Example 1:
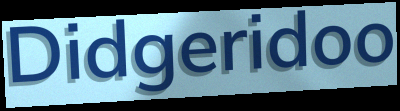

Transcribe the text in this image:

Didgeridoo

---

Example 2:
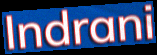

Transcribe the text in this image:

Indrani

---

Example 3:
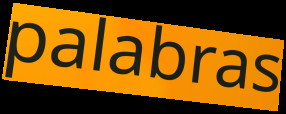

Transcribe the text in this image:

palabras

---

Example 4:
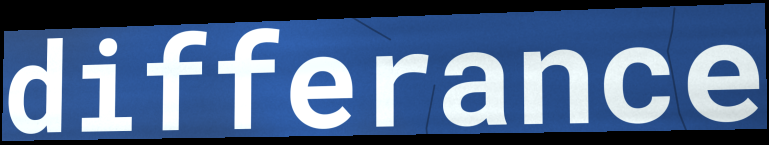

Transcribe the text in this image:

differance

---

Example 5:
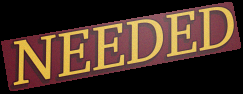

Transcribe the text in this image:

NEEDED